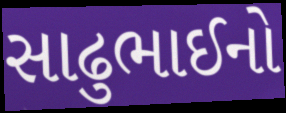
સાઢુભાઈનો